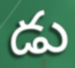
డు